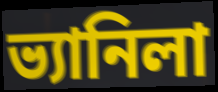
ভ্যানিলা